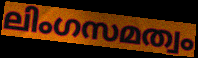
ലിംഗസമത്വം